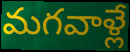
మగవాళ్లే